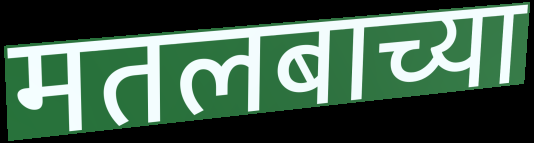
मतलबाच्या